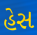
હેસ